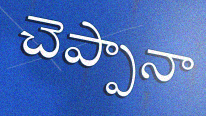
చెప్పానా